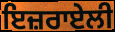
ਇਜ਼ਰਾਏਲੀ